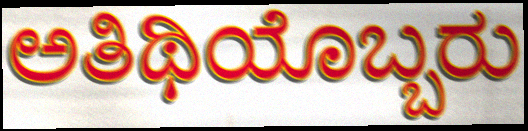
ಅತಿಥಿಯೊಬ್ಬರು